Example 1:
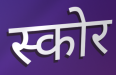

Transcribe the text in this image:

स्कोर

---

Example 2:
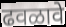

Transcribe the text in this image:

ढवळावे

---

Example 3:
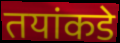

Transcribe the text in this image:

तयांकडे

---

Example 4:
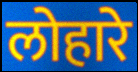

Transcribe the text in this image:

लोहारे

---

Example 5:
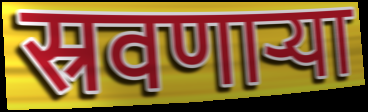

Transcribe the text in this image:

स्रवणाऱ्या